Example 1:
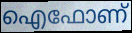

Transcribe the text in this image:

ഐഫോണ്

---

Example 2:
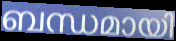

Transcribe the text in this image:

ബന്ധമായി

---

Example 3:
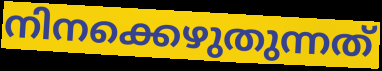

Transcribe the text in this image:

നിനക്കെഴുതുന്നത്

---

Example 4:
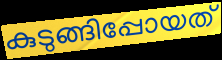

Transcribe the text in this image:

കുടുങ്ങിപ്പോയത്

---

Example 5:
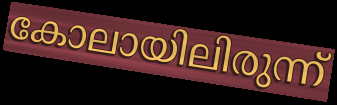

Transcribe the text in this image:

കോലായിലിരുന്ന്